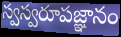
స్వస్వరూపజ్ఞానం